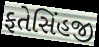
ફતેસિંહજી